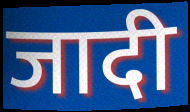
जादी